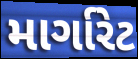
માર્ગારેટ